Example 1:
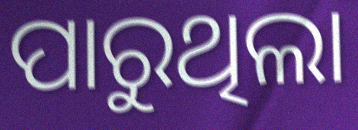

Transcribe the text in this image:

ପାରୁଥିଲା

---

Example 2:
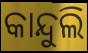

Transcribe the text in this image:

କାନ୍ଦୁଲି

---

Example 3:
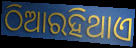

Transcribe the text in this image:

ଠିଆରହିଥାଏ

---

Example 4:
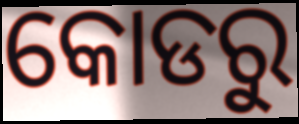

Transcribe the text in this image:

କୋଡରୁ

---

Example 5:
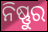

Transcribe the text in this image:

ନିଷ୍ଣୁର